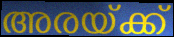
അരയ്‌ക്ക്